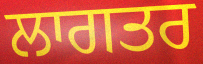
ਲਾਗਤਰ